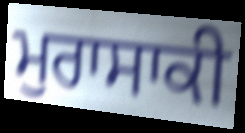
ਮੁਰਾਸਾਕੀ